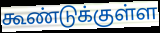
கூண்டுக்குள்ள